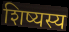
शिष्यस्य